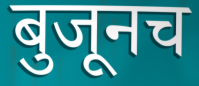
बुजूनच